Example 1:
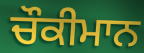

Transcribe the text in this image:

ਚੌਕੀਮਾਨ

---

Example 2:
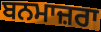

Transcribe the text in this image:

ਬਨਮਾਜ਼ਰਾ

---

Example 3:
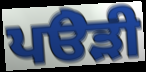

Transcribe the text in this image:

ਪੳੇੜੀ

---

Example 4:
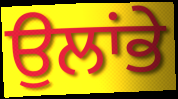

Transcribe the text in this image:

ਉਲਾਂਭੇ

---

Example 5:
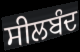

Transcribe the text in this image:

ਸੀਲਬੰਦ